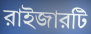
রাইজারটি